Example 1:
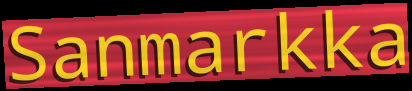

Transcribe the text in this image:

Sanmarkka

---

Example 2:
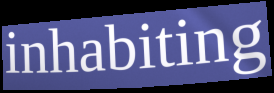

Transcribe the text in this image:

inhabiting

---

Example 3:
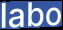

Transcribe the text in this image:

labo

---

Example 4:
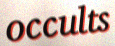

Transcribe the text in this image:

occults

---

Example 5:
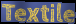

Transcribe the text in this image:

Textile